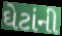
ઘેટાંની